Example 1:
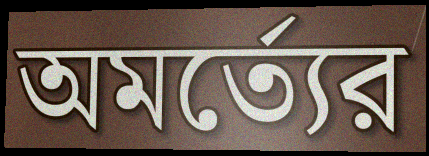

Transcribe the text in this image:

অমর্ত্যের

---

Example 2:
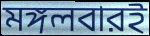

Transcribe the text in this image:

মঙ্গলবারই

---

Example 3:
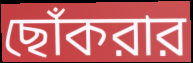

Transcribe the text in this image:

ছোঁকরার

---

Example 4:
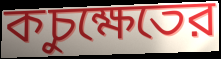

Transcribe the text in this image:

কচুক্ষেতের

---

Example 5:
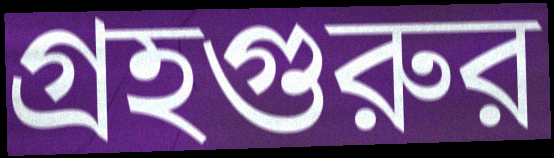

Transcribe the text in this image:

গ্রহগুরুর